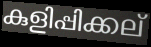
കുളിപ്പിക്കല്